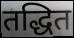
तद्धित